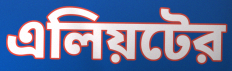
এলিয়টের